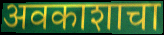
अवकाशाचा